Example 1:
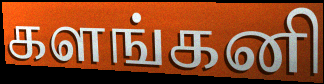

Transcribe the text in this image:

களங்கனி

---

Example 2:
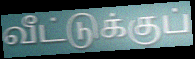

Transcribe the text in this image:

வீட்டுக்குப்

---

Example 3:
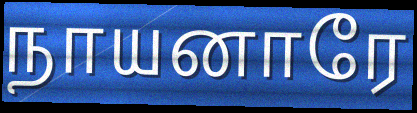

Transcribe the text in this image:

நாயனாரே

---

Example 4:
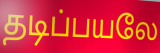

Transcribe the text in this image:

தடிப்பயலே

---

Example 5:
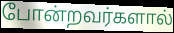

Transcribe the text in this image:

போன்றவர்களால்